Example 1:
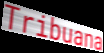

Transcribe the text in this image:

Tribuana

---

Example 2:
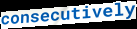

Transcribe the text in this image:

consecutively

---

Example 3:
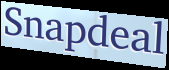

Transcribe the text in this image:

Snapdeal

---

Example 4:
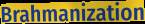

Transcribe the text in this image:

Brahmanization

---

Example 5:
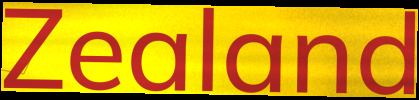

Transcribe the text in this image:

Zealand